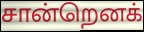
சான்றெனக்